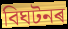
বিঘটনৰ